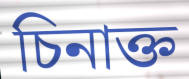
চিনাক্ত